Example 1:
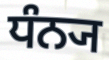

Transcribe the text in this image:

ਧੰਨ੍ਯ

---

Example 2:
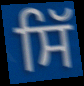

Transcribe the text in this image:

ਸਿੱ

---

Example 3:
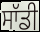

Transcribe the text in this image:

ਸਾੱਡੀ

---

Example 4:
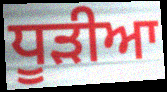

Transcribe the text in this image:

ਧੂੜੀਆ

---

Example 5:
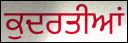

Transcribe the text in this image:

ਕੁਦਰਤੀਆਂ